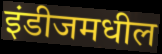
इंडीजमधील